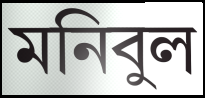
মনিবুল